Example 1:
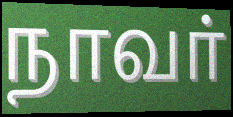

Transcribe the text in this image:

நாவர்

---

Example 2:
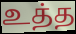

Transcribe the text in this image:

உத்த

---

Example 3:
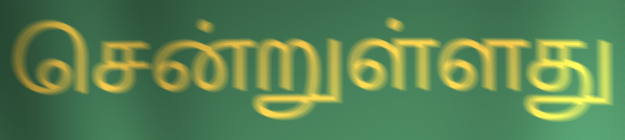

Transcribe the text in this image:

சென்றுள்ளது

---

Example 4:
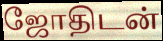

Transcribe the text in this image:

ஜோதிடன்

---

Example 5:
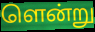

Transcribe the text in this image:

ளென்று